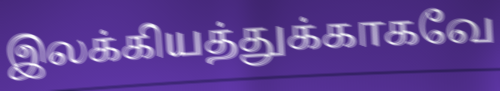
இலக்கியத்துக்காகவே